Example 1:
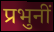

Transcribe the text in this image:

प्रभुनीं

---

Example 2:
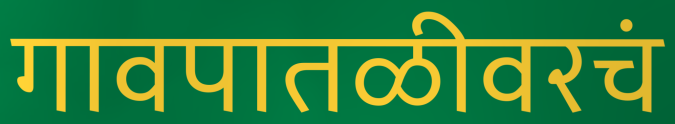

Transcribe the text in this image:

गावपातळीवरचं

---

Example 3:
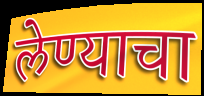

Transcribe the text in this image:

लेण्याचा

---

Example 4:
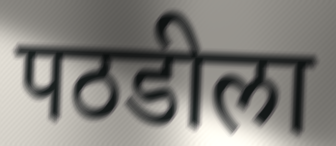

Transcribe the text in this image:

पठडीला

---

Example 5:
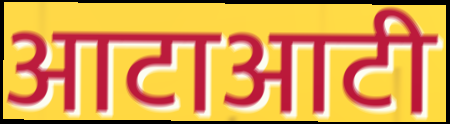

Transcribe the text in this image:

आटाआटी